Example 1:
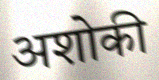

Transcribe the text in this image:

अशोकी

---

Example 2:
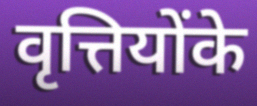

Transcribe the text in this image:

वृत्तियोंके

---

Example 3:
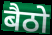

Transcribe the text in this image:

बैठो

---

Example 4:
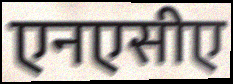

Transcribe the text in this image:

एनएसीए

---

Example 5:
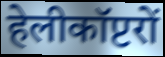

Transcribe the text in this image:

हेलीकॉप्टरों